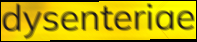
dysenteriae